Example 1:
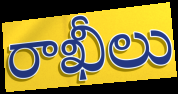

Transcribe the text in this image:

రాఖీలు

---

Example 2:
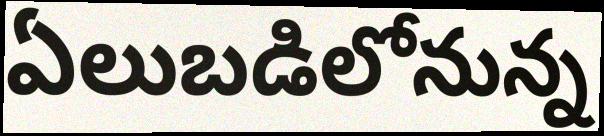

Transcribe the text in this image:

ఏలుబడిలోనున్న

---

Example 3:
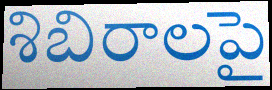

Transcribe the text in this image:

శిబిరాలపై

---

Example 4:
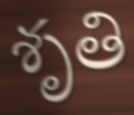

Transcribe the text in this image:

శృతి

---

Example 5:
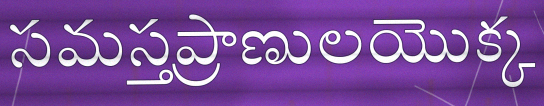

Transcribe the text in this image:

సమస్తప్రాణులయొక్క